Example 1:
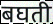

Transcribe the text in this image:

बघती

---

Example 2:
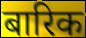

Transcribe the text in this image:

बारिक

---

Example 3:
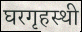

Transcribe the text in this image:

घरगृहस्थी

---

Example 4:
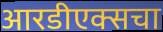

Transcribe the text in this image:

आरडीएक्सचा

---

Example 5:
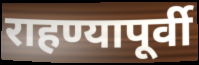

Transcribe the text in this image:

राहण्यापूर्वी